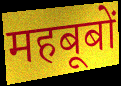
महबूबों